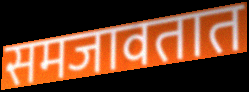
समजावतात